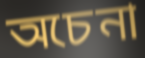
অচেনা